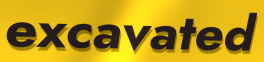
excavated